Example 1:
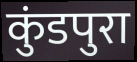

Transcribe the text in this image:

कुंडपुरा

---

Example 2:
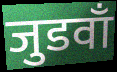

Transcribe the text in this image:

जुडवाँ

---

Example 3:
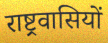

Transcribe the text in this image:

राष्ट्रवासियों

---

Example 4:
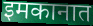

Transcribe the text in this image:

इमकानात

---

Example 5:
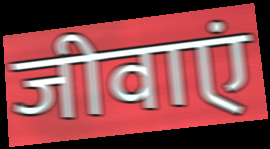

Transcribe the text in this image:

जीवाएं